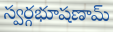
స్వర్గభూషణామ్